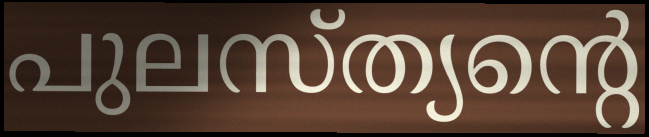
പുലസ്ത്യന്റെ